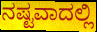
ನಷ್ಟವಾದಲ್ಲಿ